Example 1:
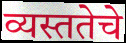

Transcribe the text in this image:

व्यस्ततेचे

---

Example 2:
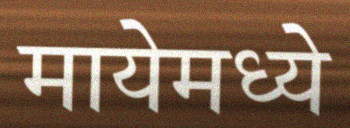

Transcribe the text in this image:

मायेमध्ये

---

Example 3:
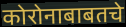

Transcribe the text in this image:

कोरोनाबाबतचे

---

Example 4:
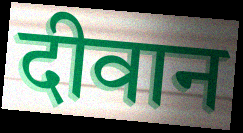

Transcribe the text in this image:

दीवान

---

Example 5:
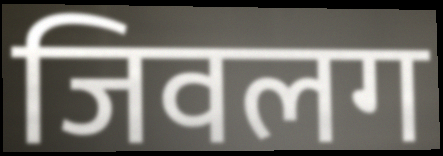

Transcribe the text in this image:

जिवलग